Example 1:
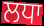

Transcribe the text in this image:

ਲਧਾ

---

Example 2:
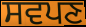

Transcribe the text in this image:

ਸਵਪਣ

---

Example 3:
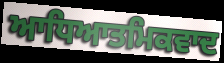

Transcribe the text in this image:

ਆਧਿਆਤਮਿਕਵਾਦ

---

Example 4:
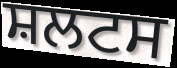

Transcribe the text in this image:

ਸ਼ਲਟਸ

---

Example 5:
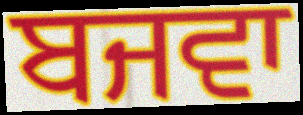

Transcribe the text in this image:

ਬਜਵਾ